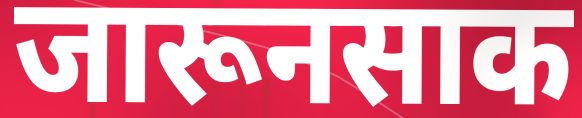
जारूनसाक